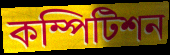
কম্পিটিশন